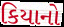
કિયાનો